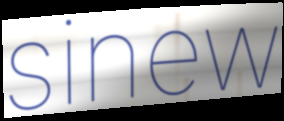
sinew